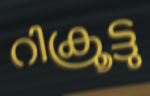
റിക്രൂട്ടു